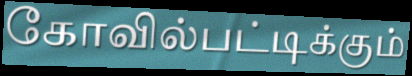
கோவில்பட்டிக்கும்